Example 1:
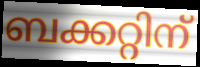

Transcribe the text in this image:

ബക്കറ്റിന്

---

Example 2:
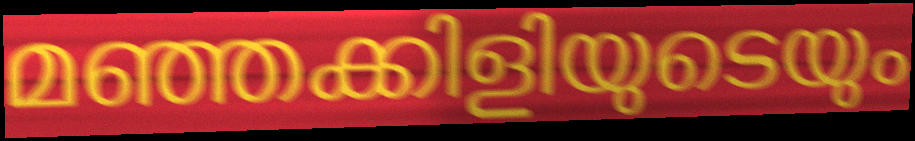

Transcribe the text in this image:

മഞ്ഞക്കിളിയുടെയും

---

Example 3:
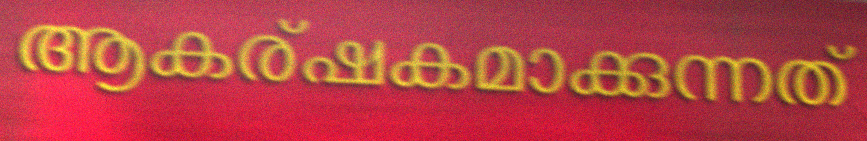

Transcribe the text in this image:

ആകര്ഷകമാക്കുന്നത്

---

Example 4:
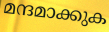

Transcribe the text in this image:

മന്ദമാക്കുക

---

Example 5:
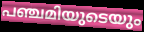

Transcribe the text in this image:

പഞ്ചമിയുടെയും